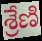
శ్రేణి